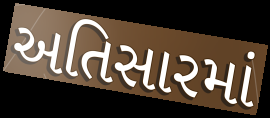
અતિસારમાં